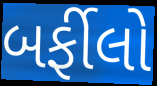
બર્ફીલો